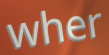
wher